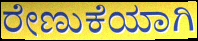
ರೇಣುಕೆಯಾಗಿ